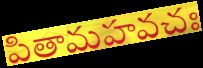
పితామహవచః